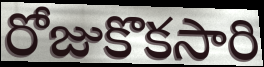
రోజుకొకసారి